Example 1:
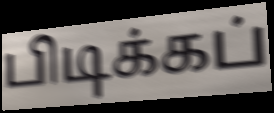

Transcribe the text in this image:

பிடிக்கப்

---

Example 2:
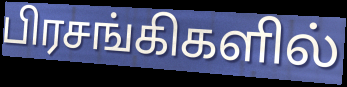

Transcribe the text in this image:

பிரசங்கிகளில்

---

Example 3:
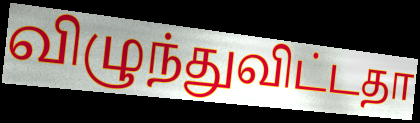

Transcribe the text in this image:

விழுந்துவிட்டதா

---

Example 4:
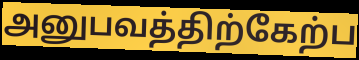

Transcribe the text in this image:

அனுபவத்திற்கேற்ப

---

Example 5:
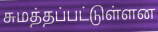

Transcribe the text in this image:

சுமத்தப்பட்டுள்ளன